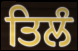
ਤਿਲੰ